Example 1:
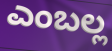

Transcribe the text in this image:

ಎಂಬಲ್ಲ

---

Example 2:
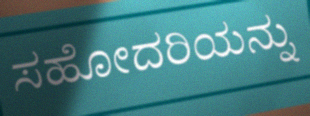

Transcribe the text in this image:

ಸಹೋದರಿಯನ್ನು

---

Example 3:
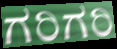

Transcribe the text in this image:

ಗರಿಗರಿ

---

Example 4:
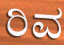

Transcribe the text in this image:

ರಿವ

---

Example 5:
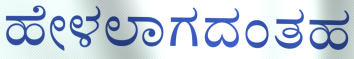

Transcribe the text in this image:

ಹೇಳಲಾಗದಂತಹ